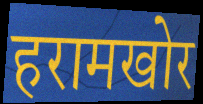
हरामखोर